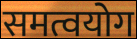
समत्वयोग